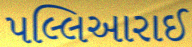
પલ્લિઆરાઈ